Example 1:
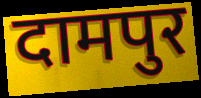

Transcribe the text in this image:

दामपुर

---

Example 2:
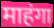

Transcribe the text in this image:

माहंगा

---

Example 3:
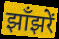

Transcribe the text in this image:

झाँझरें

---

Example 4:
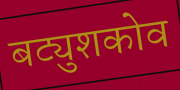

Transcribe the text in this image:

बट्युशकोव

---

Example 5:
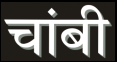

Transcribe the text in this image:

चांबी